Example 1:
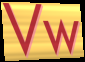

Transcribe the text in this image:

Vw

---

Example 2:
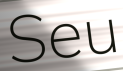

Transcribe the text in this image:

Seu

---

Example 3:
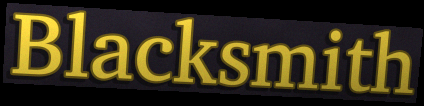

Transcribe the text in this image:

Blacksmith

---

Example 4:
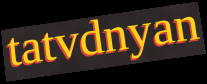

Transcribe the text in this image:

tatvdnyan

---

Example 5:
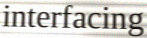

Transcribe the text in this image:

interfacing